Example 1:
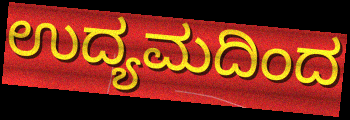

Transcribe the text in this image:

ಉದ್ಯಮದಿಂದ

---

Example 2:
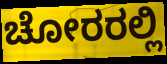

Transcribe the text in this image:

ಚೋರರಲ್ಲಿ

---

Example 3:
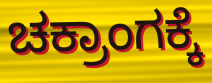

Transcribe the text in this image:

ಚಕ್ರಾಂಗಕ್ಕೆ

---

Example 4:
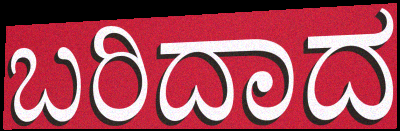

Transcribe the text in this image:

ಬರಿದಾದ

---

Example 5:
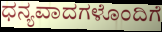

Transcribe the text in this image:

ಧನ್ಯವಾದಗಳೊಂದಿಗೆ